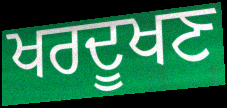
ਖਰਦੂਖਣ